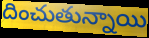
దించుతున్నాయి